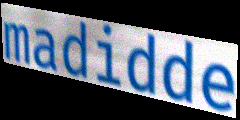
madidde